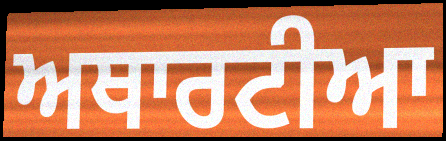
ਅਥਾਰਟੀਆ